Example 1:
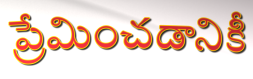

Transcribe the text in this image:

ప్రేమించడానికీ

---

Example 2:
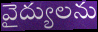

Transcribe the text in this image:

వైద్యులను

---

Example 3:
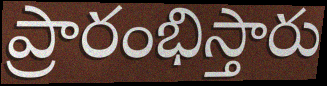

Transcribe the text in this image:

ప్రారంభిస్తారు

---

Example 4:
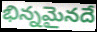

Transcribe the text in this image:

భిన్నమైనదే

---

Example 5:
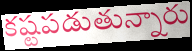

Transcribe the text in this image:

కష్టపడుతున్నారు